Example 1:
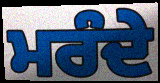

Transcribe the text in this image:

ਮਰੰਦੇ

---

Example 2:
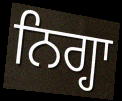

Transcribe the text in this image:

ਨਿਗ੍ਹਾ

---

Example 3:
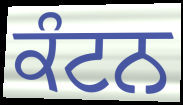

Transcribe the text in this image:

ਕੰਟਨ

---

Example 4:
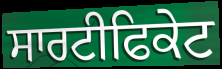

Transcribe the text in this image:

ਸਾਰਟੀਫਿਕੇਟ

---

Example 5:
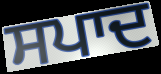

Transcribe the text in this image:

ਸਪਾਦ